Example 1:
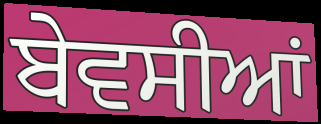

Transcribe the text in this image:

ਬੇਵਸੀਆਂ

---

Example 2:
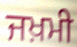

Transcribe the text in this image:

ਜਖ਼ਮੀ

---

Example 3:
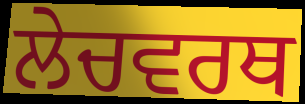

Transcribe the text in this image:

ਲੇਚਵਰਥ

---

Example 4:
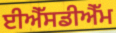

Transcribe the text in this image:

ਈਐੱਸਡੀਐੱਮ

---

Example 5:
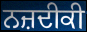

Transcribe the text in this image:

ਨਜ਼ਦੀਕੀ